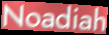
Noadiah